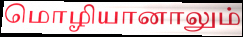
மொழியானாலும்